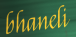
bhaneli